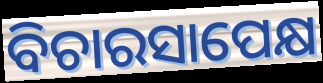
ବିଚାରସାପେକ୍ଷ